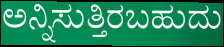
ಅನ್ನಿಸುತ್ತಿರಬಹುದು